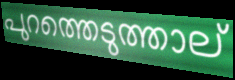
പുറത്തെടുത്താല്